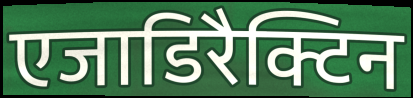
एजाडिरैक्टिन